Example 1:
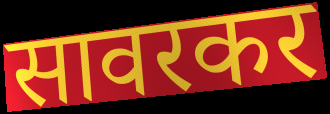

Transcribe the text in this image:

सावरकर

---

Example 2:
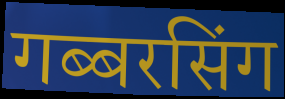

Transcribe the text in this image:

गब्बरसिंग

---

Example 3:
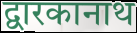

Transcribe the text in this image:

द्वारकानाथ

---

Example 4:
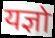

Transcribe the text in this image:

यज्ञो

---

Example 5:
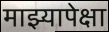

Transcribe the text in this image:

माझ्यापेक्षा